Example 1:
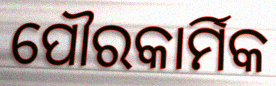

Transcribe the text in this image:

ପୌରକାର୍ମିକ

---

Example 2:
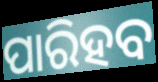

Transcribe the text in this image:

ପାରିହବ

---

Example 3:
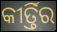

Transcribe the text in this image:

କୀର୍ତ୍ତିର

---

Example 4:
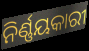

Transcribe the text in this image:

ନିର୍ଣ୍ଣୟକାରୀ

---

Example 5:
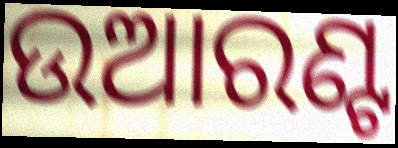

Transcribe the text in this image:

ଉଆରଣ୍ଟ